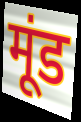
मूंड